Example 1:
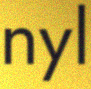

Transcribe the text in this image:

nyl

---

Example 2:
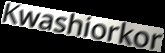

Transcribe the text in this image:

Kwashiorkor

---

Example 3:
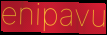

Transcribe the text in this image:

enipavu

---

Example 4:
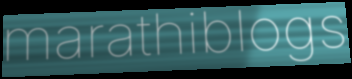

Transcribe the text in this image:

marathiblogs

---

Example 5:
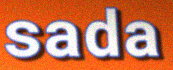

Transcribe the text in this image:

sada